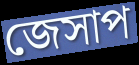
জেসাপ